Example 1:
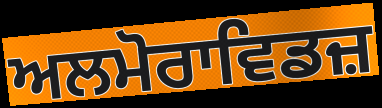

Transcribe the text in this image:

ਅਲਮੋਰਾਵਿਡਜ਼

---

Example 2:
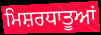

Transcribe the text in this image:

ਮਿਸ਼ਰਧਾਤੂਆਂ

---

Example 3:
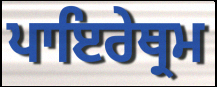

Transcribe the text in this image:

ਪਾਇਰੇਥ੍ਰਮ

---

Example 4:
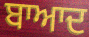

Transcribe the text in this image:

ਬਾਆਦ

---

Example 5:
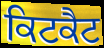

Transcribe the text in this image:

ਕਿਟਕੈਟ